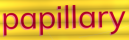
papillary